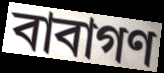
বাবাগণ